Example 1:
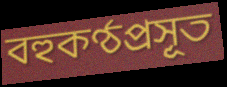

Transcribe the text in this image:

বহুকণ্ঠপ্রসূত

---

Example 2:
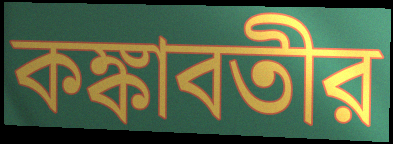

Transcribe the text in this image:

কঙ্কাবতীর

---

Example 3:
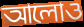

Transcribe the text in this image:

আলোও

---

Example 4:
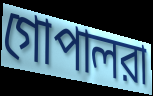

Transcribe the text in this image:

গোপালরা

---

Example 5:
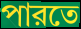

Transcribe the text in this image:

পারতে